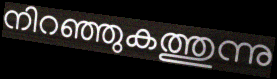
നിറഞ്ഞുകത്തുന്നു